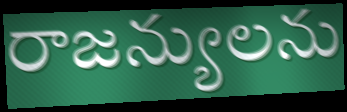
రాజన్యులను